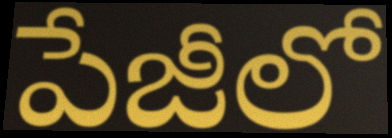
పేజీలో